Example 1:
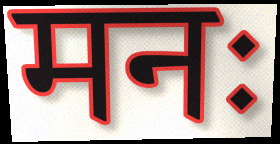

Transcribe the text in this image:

मनः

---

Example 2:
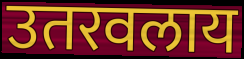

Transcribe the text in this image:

उतरवलाय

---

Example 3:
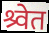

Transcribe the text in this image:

श्र्वेत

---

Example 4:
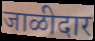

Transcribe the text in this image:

जाळीदार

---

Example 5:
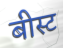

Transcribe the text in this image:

बीस्ट